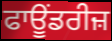
ਫਾਊਂਡਰੀਜ਼